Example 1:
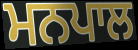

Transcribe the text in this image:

ਮਨਪਾਲ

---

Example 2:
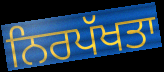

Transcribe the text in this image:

ਨਿਰਪੱਖਤਾ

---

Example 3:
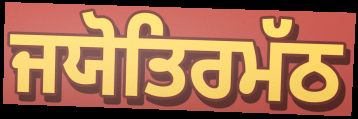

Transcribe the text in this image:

ਜਯੋਤਿਰਮੱਠ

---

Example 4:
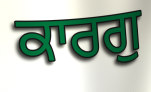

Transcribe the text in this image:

ਕਾਰਗੁ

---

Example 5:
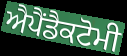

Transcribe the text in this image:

ਐਪੈਂਡੈਕਟੋਮੀ